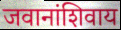
जवानांशिवाय